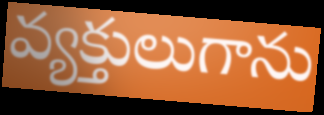
వ్యక్తులుగాను